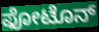
ಫೋಟೊನ್